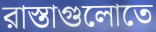
রাস্তাগুলোতে